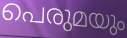
പെരുമയും